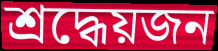
শ্রদ্ধেয়জন